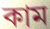
কাম